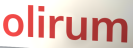
olirum